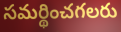
సమర్థించగలరు